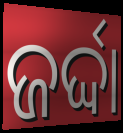
ଜର୍ଦ୍ଦା